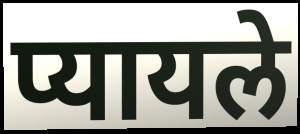
प्यायले